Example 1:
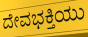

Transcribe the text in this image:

ದೇವಭಕ್ತಿಯು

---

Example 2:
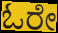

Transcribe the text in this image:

ಓರೇ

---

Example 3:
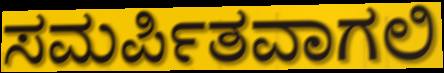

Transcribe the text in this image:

ಸಮರ್ಪಿತವಾಗಲಿ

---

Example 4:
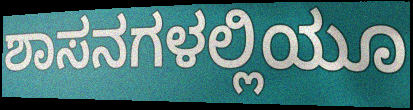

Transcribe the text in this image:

ಶಾಸನಗಳಲ್ಲಿಯೂ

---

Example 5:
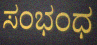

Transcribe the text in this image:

ಸಂಭಂಧ